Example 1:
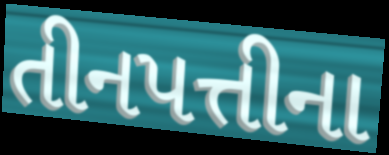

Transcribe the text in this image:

તીનપત્તીના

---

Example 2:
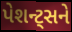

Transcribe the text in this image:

પેશન્ટ્સને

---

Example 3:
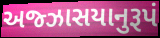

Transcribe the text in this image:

અજ્ઝાસયાનુરૂપં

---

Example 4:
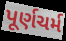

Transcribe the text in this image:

પૂર્ણચર્મ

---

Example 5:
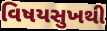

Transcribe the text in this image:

વિષયસુખથી